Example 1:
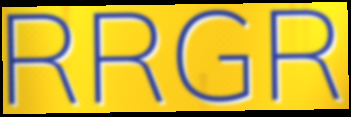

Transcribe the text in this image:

RRGR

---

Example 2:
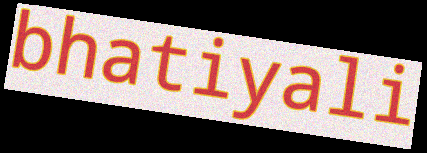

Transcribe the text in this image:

bhatiyali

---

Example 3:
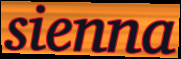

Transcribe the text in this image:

sienna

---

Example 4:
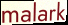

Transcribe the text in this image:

malark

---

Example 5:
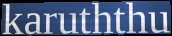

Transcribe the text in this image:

karuththu